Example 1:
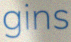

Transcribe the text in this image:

gins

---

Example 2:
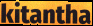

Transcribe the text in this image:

kitantha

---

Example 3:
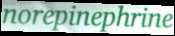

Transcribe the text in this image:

norepinephrine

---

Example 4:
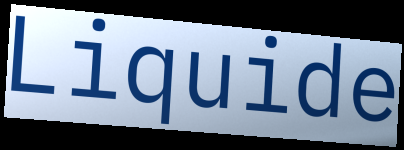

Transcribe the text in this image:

Liquide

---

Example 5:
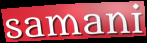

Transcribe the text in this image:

samani